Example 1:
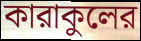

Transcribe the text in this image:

কারাকুলের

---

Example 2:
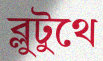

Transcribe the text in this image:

ব্লুটুথে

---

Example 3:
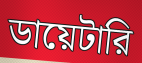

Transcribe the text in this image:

ডায়েটারি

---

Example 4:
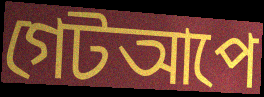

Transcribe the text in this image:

গেটআপে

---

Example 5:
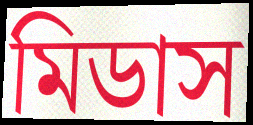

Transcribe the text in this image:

মিডাস